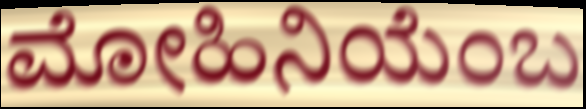
ಮೋಹಿನಿಯೆಂಬ